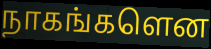
நாகங்களென